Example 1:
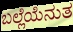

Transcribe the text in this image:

ಬಲ್ಲೆಯೆನುತ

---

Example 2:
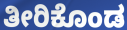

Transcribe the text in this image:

ತೀರಿಕೊಂಡ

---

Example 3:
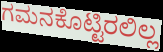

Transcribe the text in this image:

ಗಮನಕೊಟ್ಟಿರಲಿಲ್ಲ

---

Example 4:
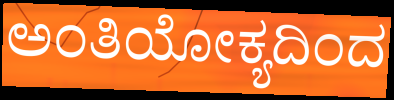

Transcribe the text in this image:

ಅಂತಿಯೋಕ್ಯದಿಂದ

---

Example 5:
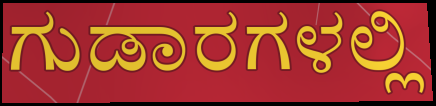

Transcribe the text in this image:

ಗುಡಾರಗಳಲ್ಲಿ